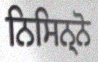
ਨਿਸਿਨ੍ਨੋ